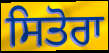
ਸਿਤੋਰਾ